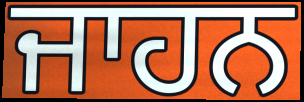
ਜਾਹਨ